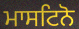
ਮਾਸਟਿਨੋ